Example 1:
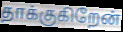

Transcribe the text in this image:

தாக்குகிறேன்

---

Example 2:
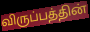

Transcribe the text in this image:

விருப்பத்தின்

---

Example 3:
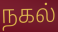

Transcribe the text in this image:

நகல்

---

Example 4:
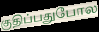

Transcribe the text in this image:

குதிப்பதுபோல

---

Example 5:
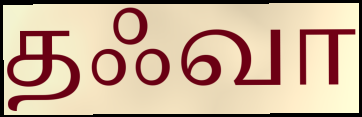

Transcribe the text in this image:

தஃவா